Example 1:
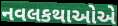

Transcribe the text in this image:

નવલકથાઓએ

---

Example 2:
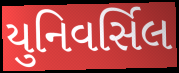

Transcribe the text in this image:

યુનિવર્સિલ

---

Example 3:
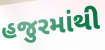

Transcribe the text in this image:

હજુરમાંથી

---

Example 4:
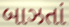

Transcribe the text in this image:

બાઝતાં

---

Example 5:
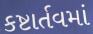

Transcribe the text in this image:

કષ્ટાર્તવમાં